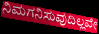
ನಿಮಗನಿಸುವುದಿಲ್ಲವೇ